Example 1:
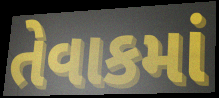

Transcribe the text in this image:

તેવાકમાં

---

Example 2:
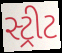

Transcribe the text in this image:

સ્ટ્રીટ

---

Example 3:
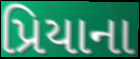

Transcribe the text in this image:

પ્રિયાના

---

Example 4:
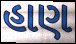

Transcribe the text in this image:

હાણ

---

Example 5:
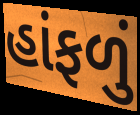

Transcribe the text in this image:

હાંફળું